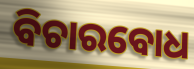
ବିଚାରବୋଧ